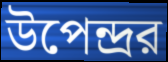
উপেন্দ্রর